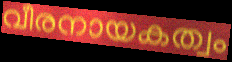
വീരനായകത്വം